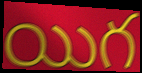
యిగ